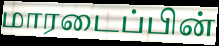
மாரடைப்பின்